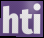
hti